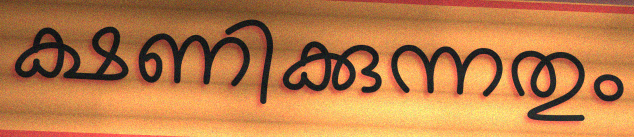
ക്ഷണിക്കുന്നതും